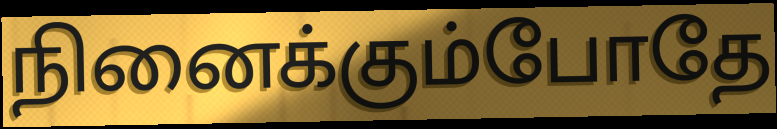
நினைக்கும்போதே